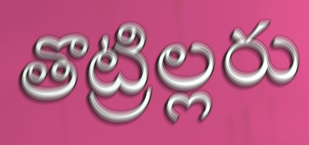
తొట్రిల్లరు